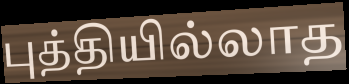
புத்தியில்லாத